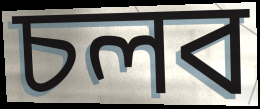
চলব